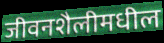
जीवनशैलीमधील